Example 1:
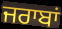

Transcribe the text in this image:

ਜਰਾਬਾਂ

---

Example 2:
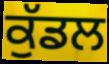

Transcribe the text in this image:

ਕੁੱਡਲ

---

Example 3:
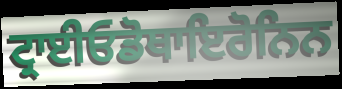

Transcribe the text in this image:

ਟ੍ਰਾਈਓਡੋਥਾਇਰੋਨਿਨ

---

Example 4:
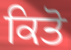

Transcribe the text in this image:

ਕਿਤੋ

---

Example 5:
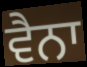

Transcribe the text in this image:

ਵੈਨਾ